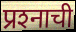
प्रश्‍नाची